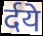
र्दये